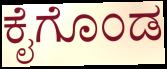
ಕೈಗೊಂಡ